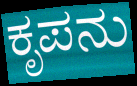
ಕೃಪನು